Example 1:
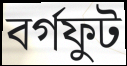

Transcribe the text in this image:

বর্গফুট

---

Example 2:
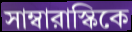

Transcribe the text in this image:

সাম্বারাস্কিকে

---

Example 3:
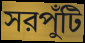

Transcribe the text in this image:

সরপুঁটি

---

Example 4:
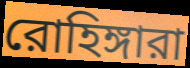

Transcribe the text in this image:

রোহিঙ্গারা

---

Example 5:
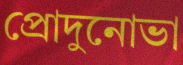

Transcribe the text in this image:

প্রোদুনোভা